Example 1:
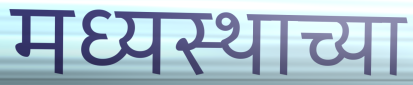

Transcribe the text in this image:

मध्यस्थाच्या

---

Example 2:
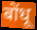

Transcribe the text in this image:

बोंधू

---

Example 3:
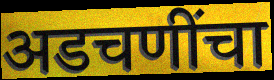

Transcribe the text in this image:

अडचणींचा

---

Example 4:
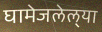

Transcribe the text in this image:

घामेजलेल्या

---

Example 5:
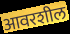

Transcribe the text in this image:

आवरशील